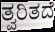
ತ್ವರಿತದೆ